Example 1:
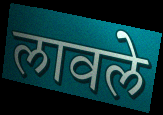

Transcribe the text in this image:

लावले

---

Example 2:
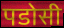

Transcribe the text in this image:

पडोसी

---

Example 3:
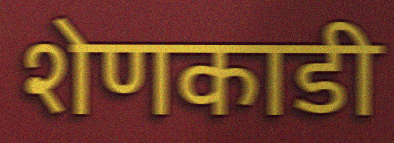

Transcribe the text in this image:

शेणकाडी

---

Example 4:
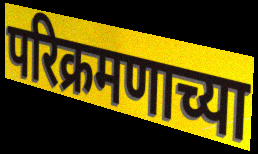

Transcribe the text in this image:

परिक्रमणाच्या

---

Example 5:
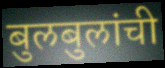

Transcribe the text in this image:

बुलबुलांची